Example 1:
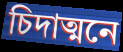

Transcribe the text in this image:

চিদাত্মনে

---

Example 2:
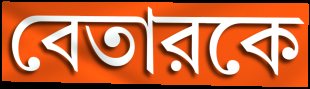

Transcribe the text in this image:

বেতারকে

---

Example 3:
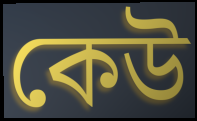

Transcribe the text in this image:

কেউ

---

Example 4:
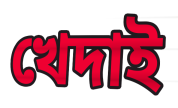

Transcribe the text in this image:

খেদাই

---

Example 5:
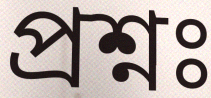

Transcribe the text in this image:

প্রশ্নঃ